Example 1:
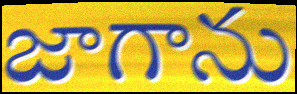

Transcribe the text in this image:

జాగాను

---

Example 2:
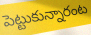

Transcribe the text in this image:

పెట్టుకున్నారంట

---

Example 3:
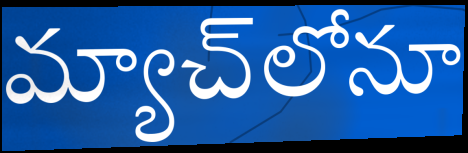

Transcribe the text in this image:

మ్యాచ్‌లోనూ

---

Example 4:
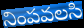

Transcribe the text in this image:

నింపవలసి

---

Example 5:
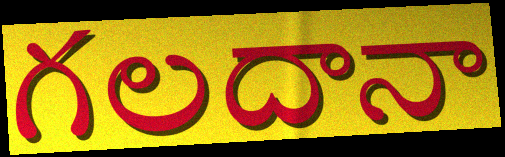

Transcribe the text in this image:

గలదానా